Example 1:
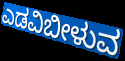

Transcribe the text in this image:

ಎಡವಿಬೀಳುವ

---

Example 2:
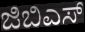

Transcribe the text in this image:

ಜಿಬಿಎಸ್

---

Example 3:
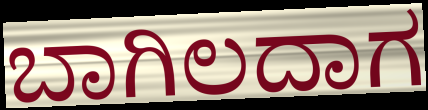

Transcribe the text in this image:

ಬಾಗಿಲದಾಗ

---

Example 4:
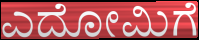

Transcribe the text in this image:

ಎದೋಮಿಗೆ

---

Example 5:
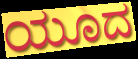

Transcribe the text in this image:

ಯೂದ